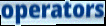
operators